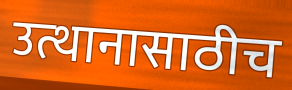
उत्थानासाठीच